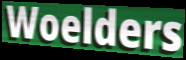
Woelders